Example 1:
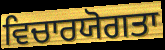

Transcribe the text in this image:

ਵਿਚਾਰਯੋਗਤਾ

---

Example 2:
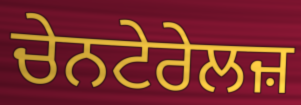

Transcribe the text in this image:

ਚੇਨਟੇਰੇਲਜ਼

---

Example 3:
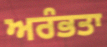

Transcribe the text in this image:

ਅਰੰਭਤਾ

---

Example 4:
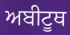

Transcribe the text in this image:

ਅਬੀਟੂਥ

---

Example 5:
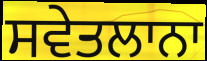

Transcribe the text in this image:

ਸਵੇਤਲਾਨਾ